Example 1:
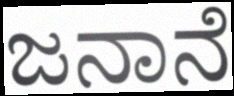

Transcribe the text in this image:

ಜನಾನೆ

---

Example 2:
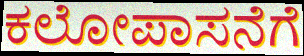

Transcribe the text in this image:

ಕಲೋಪಾಸನೆಗೆ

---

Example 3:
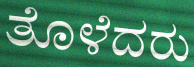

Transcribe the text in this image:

ತೊಳೆದರು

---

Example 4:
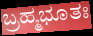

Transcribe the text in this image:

ಬ್ರಹ್ಮಭೂತಃ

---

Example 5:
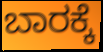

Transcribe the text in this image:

ಬಾರಕ್ಕೆ